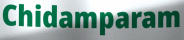
Chidamparam